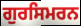
ਗੁਰਸਿਮਰਨ